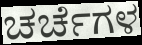
ಚರ್ಚೆಗಳ